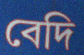
বেদি